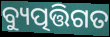
ବ୍ୟୁତ୍ପତ୍ତିଗତ